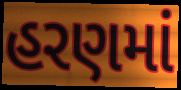
હરણમાં